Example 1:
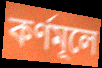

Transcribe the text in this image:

কর্ণমূলে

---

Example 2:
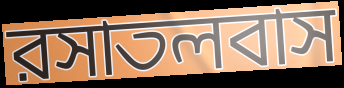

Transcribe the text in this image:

রসাতলবাস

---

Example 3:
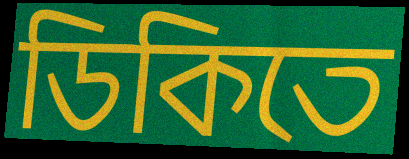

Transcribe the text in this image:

ডিকিতে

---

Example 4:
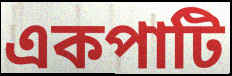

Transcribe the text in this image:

একপাটি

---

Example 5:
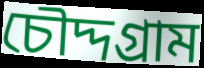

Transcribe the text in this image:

চৌদ্দগ্রাম